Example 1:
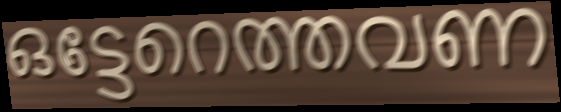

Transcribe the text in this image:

ഒട്ടേറെത്തവണ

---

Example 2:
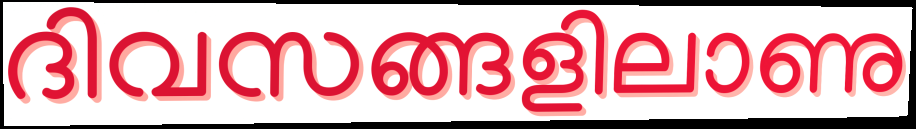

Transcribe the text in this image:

ദിവസങ്ങളിലാണു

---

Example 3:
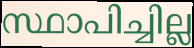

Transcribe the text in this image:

സ്ഥാപിച്ചില്ല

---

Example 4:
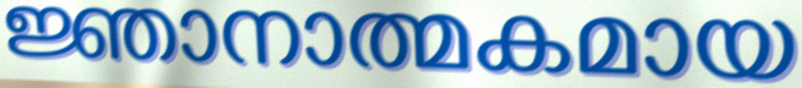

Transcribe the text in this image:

ജ്ഞാനാത്മകമായ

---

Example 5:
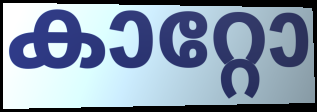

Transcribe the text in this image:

കാറ്റോ